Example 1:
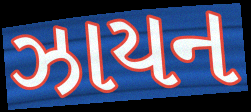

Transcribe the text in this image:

ઝાયન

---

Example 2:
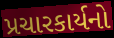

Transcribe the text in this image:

પ્રચારકાર્યનો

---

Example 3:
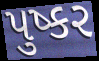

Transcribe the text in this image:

પુષ્કર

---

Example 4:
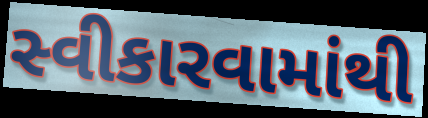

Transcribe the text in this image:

સ્વીકારવામાંથી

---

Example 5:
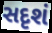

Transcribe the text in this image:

સદૃશં